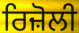
ਰਿਜ਼ੋਲੀ